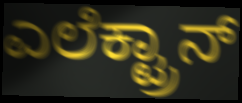
ಎಲೆಕ್ಟ್ರಾನ್